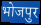
भोजपुर